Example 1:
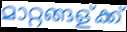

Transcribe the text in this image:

മാറ്റങ്ങള്ക്ക്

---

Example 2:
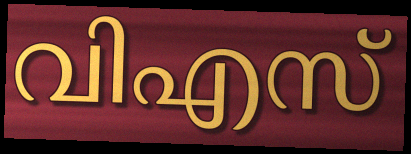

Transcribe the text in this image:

വിഎസ്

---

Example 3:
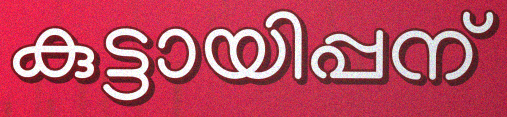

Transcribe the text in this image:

കുട്ടായിപ്പന്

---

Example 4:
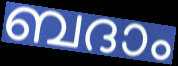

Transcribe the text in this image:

ബദാം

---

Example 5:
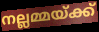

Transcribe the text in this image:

നല്ലമ്മയ്ക്ക്